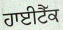
ਹਾਈਟੈੱਕ